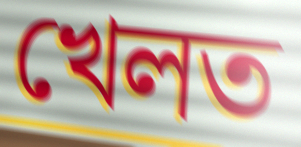
খেলত